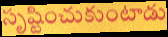
సృష్టించుకుంటాడు